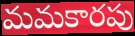
మమకారపు